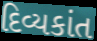
દિવ્યકાંત